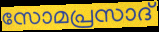
സോമപ്രസാദ്